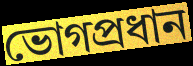
ভোগপ্রধান